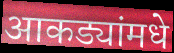
आकड्यांमधे